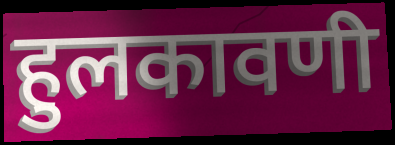
हुलकावणी